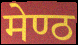
मेण्ठ